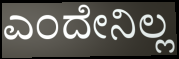
ಎಂದೇನಿಲ್ಲ